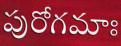
పురోగమాః